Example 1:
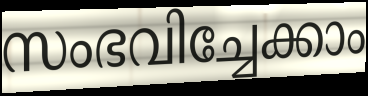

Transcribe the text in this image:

സംഭവിച്ചേക്കാം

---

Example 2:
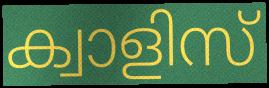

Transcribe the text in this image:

ക്വാളിസ്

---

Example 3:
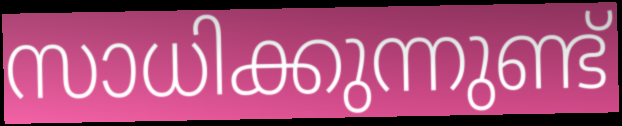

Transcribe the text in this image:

സാധിക്കുന്നുണ്ട്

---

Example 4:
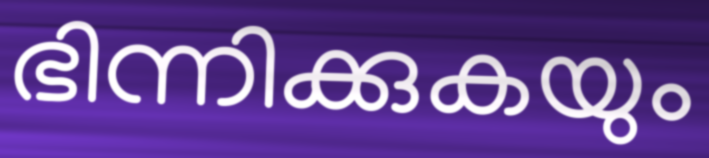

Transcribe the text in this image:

ഭിന്നിക്കുകയും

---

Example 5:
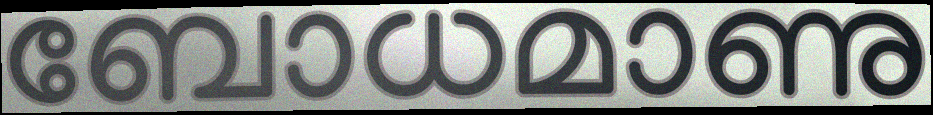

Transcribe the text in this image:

ബോധമാണു